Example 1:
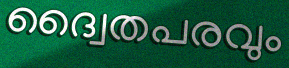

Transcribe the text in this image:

ദ്വൈതപരവും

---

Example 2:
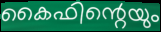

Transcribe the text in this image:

കൈഫിന്റെയും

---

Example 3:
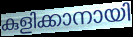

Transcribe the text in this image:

കുളിക്കാനായി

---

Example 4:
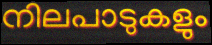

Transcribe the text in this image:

നിലപാടുകളും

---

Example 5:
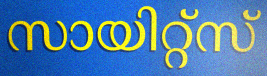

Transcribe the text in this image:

സായിറ്റ്സ്